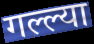
गल्ल्या